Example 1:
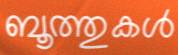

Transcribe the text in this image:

ബൂത്തുകൾ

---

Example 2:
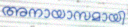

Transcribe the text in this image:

അനായാസമായി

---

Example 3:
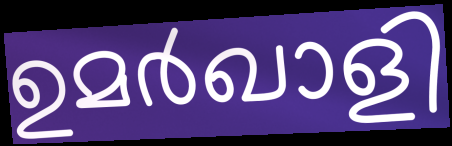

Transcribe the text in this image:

ഉമർഖാളി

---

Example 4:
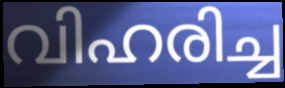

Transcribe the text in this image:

വിഹരിച്ച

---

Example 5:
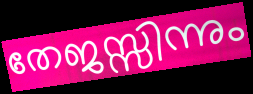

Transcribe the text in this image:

തേജസ്സിന്നും